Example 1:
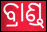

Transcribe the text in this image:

ବ୍ରାଣ୍ଡ୍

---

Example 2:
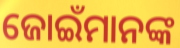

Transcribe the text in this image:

ଜୋଇଁମାନଙ୍କ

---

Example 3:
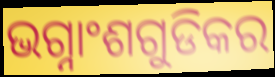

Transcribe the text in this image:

ଭଗ୍ନାଂଶଗୁଡିକର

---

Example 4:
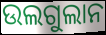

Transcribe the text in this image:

ଉଲଗୁଲାନ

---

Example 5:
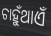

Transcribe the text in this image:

ଚାହୁଁଥାଏଁ